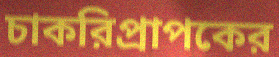
চাকরিপ্রাপকের